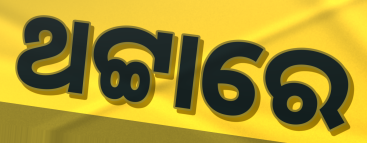
ଥଟ୍ଟାରେ